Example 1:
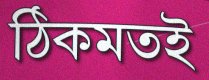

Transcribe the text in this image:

ঠিকমতই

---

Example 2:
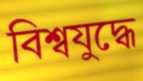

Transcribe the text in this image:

বিশ্বযুদ্ধে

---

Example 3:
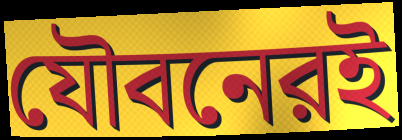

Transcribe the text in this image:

যৌবনেরই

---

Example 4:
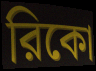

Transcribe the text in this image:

রিকো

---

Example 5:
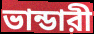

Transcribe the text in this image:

ভান্ডারী